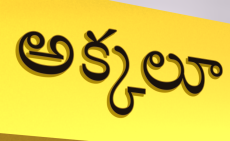
అక్కలూ